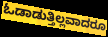
ಓಡಾಡುತ್ತಿಲ್ಲವಾದರೂ